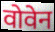
वोवेन